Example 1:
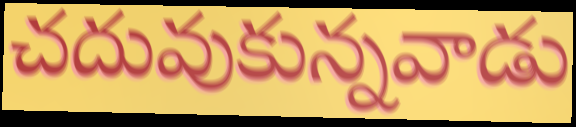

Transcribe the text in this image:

చదువుకున్నవాడు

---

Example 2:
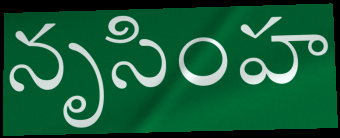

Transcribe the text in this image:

నృసింహ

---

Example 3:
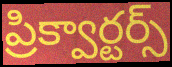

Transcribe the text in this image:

ప్రిక్వార్టర్స్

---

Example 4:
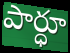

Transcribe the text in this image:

పార్ధూ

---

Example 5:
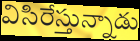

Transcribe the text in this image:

విసిరేస్తున్నాడు